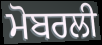
ਮੋਬਰਲੀ